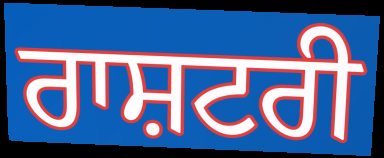
ਰਾਸ਼ਟਰੀ